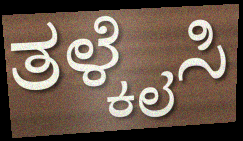
ತಳ್ಕೈಸಿ